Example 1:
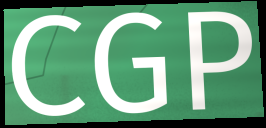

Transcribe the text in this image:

CGP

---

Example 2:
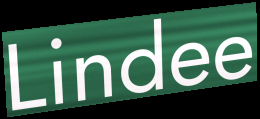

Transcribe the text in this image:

Lindee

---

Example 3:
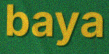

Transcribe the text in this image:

baya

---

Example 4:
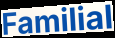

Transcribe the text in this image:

Familial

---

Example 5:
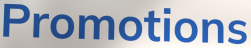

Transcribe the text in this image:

Promotions